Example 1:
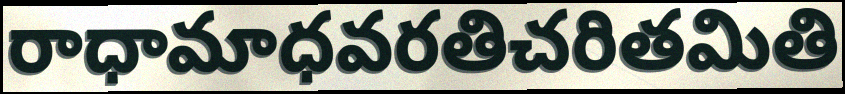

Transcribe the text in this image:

రాధామాధవరతిచరితమితి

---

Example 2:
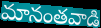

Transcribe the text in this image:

మానంతవాడి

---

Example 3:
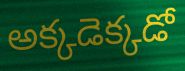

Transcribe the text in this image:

అక్కడెక్కడో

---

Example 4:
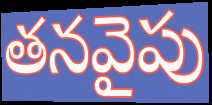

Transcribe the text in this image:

తనవైపు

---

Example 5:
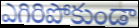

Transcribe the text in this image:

ఎగిరిపోకుండా